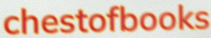
chestofbooks